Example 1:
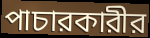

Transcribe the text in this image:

পাচারকারীর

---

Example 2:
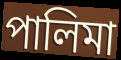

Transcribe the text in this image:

পালিমা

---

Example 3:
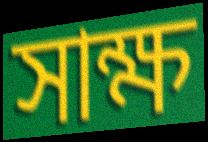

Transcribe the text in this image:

সাক্ষ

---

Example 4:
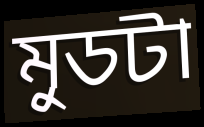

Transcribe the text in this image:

মুডটা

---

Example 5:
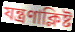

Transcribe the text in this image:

যন্ত্রণাক্লিষ্ট